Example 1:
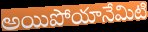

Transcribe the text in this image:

అయిపోయానేమిటి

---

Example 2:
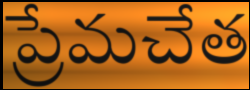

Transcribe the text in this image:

ప్రేమచేత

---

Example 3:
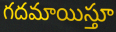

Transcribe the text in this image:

గదమాయిస్తూ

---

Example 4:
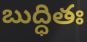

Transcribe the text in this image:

బుద్ధితః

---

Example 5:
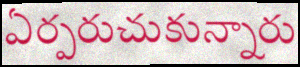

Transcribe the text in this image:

ఏర్పరుచుకున్నారు